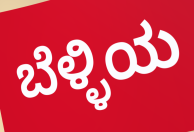
ಬೆಳ್ಳಿಯ